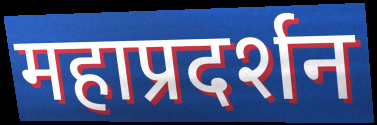
महाप्रदर्शन